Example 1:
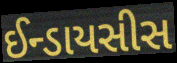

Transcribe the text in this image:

ઈન્ડાયસીસ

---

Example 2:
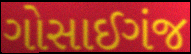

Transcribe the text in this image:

ગોસાઈગંજ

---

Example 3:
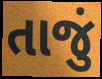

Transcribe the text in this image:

તાજું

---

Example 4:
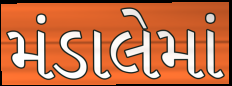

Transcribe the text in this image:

મંડાલેમાં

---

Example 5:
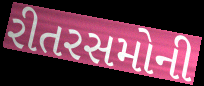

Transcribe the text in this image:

રીતરસમોની